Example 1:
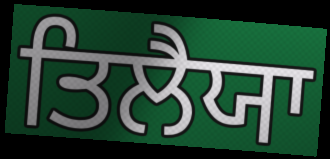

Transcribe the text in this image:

ਤਿਲੈਯਾ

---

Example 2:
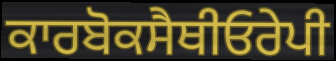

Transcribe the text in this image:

ਕਾਰਬੋਕਸੈਥੀਓਰੇਪੀ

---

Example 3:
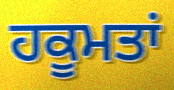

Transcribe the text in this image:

ਹਕੂਮਤਾਂ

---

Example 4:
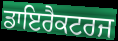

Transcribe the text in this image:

ਡਾਇਰੈਕਟਰਜ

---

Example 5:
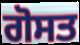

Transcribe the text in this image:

ਗੋਸਤ